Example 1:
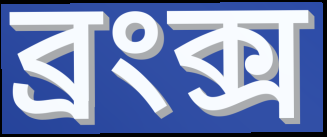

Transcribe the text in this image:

ব্রংক্স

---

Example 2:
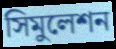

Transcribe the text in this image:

সিমুলেশন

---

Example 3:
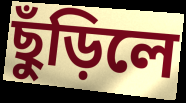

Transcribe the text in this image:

ছুঁড়িলে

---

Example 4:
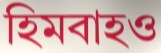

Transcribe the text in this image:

হিমবাহও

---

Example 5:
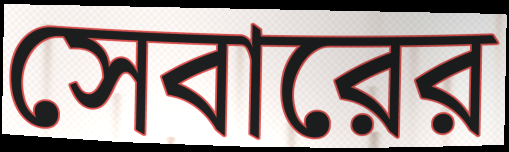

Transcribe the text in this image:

সেবারের